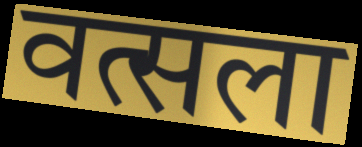
वत्‍सला